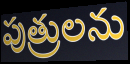
పుత్రులను